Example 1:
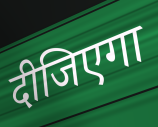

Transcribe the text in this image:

दीजिएगा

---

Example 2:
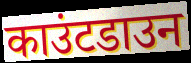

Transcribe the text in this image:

काउंटडाउन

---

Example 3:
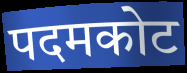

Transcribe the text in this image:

पदमकोट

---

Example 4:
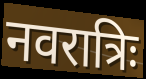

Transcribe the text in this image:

नवरात्रिः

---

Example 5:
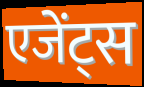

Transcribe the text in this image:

एजेंट्स